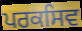
ਪਰਕਸਿਵ